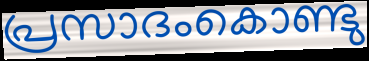
പ്രസാദംകൊണ്ടു